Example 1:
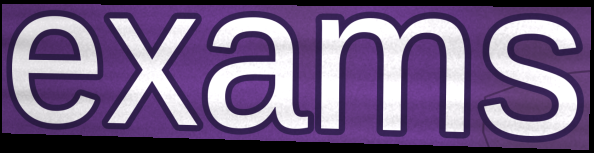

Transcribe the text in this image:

exams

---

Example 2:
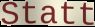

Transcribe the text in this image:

Statt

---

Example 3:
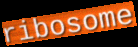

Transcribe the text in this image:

ribosome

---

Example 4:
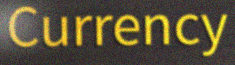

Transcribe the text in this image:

Currency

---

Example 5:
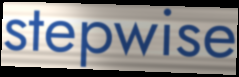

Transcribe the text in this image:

stepwise